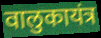
वालुकायंत्र